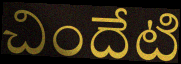
చిందేటి